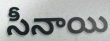
సీనాయి